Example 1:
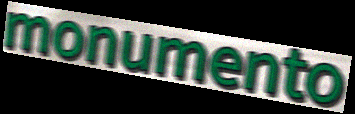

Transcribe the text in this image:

monumento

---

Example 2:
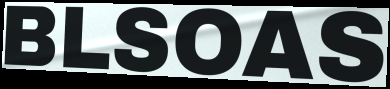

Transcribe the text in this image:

BLSOAS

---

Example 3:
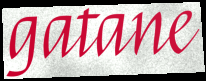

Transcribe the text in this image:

gatane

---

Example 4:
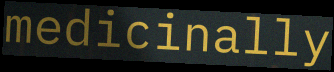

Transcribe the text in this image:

medicinally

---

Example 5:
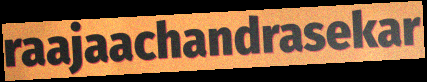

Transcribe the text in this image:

raajaachandrasekar